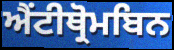
ਐਂਟੀਥ੍ਰੋਮਬਿਨ